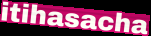
itihasacha